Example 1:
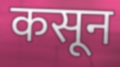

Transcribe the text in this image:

कसून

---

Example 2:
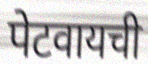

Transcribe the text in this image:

पेटवायची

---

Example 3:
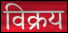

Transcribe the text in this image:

विक्रय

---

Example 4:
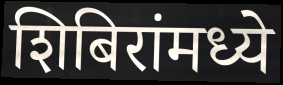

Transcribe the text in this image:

शिबिरांमध्ये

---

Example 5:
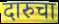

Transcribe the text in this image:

दारुचा